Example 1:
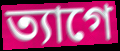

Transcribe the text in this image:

ত্যাগে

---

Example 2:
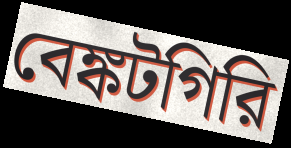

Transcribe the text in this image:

বেঙ্কটগিরি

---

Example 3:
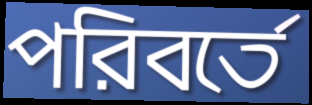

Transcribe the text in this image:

পরিবর্তে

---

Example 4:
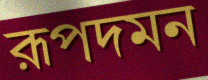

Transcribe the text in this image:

রূপদমন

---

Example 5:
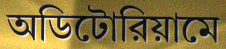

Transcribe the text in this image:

অডিটোরিয়ামে